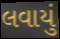
લવાયું